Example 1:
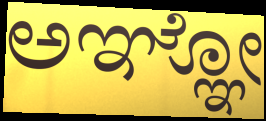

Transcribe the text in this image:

ಅಞ್ಞೋ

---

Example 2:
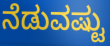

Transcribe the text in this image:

ನೆಡುವಷ್ಟು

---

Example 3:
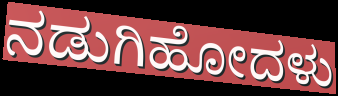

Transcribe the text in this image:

ನಡುಗಿಹೋದಳು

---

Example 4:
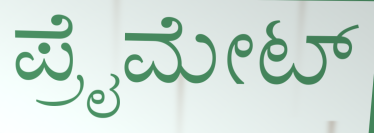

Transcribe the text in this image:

ಪ್ರೈಮೇಟ್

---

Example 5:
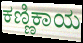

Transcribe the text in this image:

ಕಣ್ಣಿಕಾಯ